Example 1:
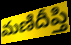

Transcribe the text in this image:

మణిదీప్తి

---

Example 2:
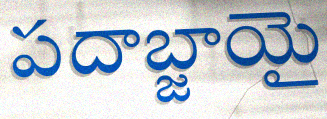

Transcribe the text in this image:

పదాబ్జాయై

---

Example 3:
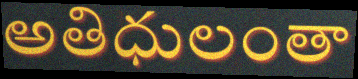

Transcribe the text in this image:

అతిధులంతా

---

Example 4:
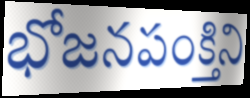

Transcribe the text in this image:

భోజనపంక్తిని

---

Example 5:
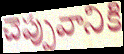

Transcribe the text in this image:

చెప్పువానికి